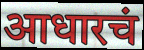
आधारचं